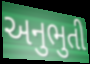
અનુભુતી